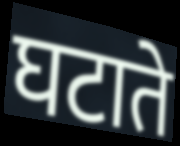
घटाते